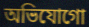
অভিযোগো